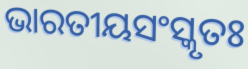
ଭାରତୀୟସଂସ୍କୃତଃ